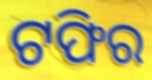
ଟଫିର